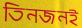
তিনজনই